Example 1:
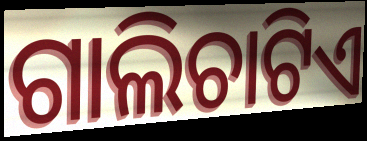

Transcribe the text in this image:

ଗାଲିଚାଟିଏ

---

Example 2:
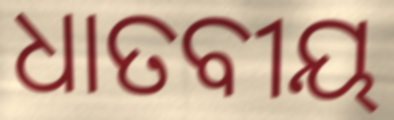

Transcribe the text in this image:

ଧାତବୀୟ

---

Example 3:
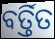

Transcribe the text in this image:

ବର୍ତ୍ତିତ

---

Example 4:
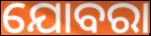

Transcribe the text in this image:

ଯୋବରା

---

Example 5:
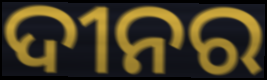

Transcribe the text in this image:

ଦୀନର